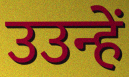
उउन्हें